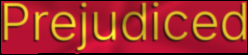
Prejudiced